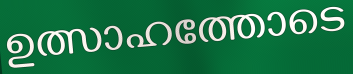
ഉത്സാഹത്തോടെ